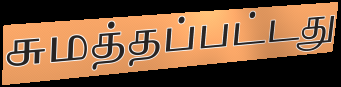
சுமத்தப்பட்டது